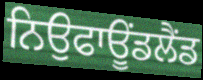
ਨਿਉਫਾਊਂਡਲੈਂਡ